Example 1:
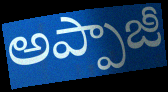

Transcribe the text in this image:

అప్పాజీ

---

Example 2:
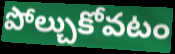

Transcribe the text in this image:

పోల్చుకోవటం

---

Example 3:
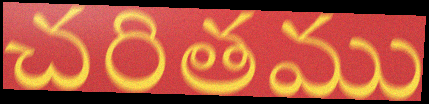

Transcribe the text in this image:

చరితము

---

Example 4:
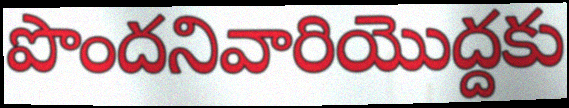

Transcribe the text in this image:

పొందనివారియొద్దకు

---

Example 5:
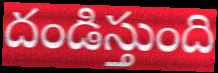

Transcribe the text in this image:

దండిస్తుంది